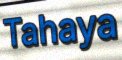
Tahaya